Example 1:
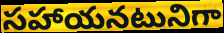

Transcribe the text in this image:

సహాయనటునిగా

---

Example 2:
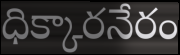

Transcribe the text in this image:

ధిక్కారనేరం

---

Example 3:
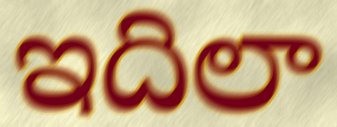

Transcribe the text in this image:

ఇదిలా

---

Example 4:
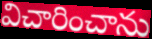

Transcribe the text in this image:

విచారించాను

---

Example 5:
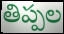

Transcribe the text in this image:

తిప్పల